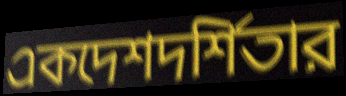
একদেশদর্শিতার